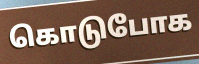
கொடுபோக